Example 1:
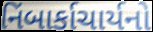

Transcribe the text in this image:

નિંબાર્કાચાર્યનો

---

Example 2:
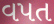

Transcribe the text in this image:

વપત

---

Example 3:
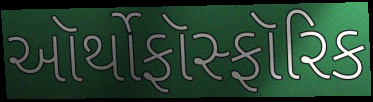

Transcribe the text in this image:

ઑર્થોફૉસ્ફૉરિક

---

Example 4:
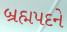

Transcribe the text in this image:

બ્રહ્મપદને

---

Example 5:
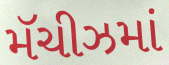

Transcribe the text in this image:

મૅચીઝમાં